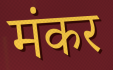
मंकर